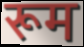
रूम